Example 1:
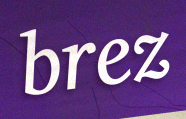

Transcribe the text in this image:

brez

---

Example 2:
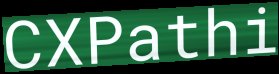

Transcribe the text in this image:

CXPathi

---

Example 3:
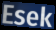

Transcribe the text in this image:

Esek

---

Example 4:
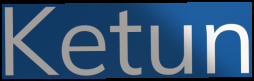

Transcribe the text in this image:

Ketun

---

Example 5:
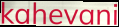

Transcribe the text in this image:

kahevani